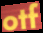
otf